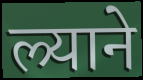
ल्याने